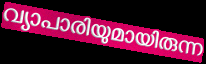
വ്യാപാരിയുമായിരുന്ന